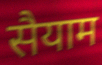
सैयाम